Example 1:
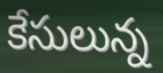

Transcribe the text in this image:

కేసులున్న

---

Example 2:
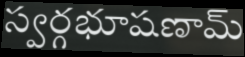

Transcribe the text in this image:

స్వర్గభూషణామ్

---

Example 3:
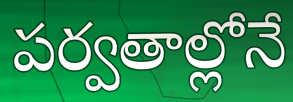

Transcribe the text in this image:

పర్వతాల్లోనే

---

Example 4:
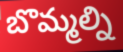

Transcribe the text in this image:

బొమ్మల్ని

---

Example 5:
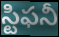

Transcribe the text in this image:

స్టిఫనీ